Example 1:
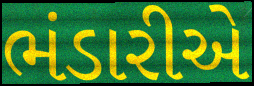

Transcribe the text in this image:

ભંડારીએ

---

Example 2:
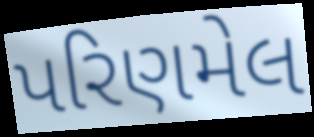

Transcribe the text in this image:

પરિણમેલ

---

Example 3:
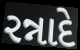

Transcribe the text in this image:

રન્નાદે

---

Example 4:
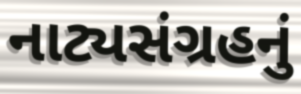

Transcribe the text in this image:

નાટ્યસંગ્રહનું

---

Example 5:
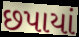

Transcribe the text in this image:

છપાયાં